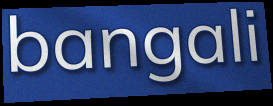
bangali